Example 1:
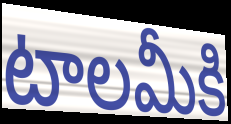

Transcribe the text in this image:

టాలమీకి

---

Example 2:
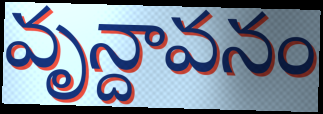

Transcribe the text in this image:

వృన్దావనం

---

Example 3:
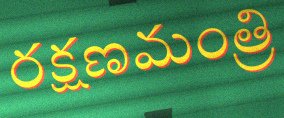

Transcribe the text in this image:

రక్షణమంత్రి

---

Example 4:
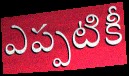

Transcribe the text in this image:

ఎప్పటికీ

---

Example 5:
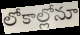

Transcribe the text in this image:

లోకాల్లోనూ